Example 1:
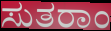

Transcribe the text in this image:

ಸುತರಾಂ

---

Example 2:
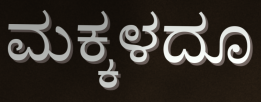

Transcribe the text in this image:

ಮಕ್ಕಳದೂ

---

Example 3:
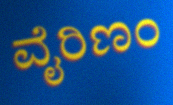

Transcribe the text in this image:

ವೈರಿಣಂ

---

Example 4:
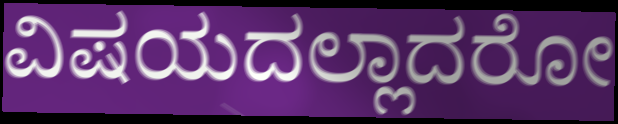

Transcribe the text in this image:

ವಿಷಯದಲ್ಲಾದರೋ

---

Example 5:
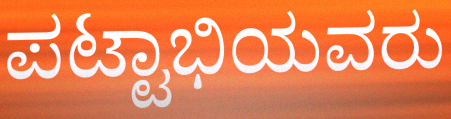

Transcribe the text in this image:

ಪಟ್ಟಾಭಿಯವರು